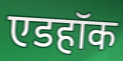
एडहॉक